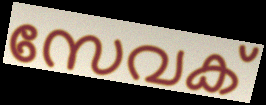
സേവക്